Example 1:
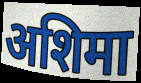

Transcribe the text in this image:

अशिमा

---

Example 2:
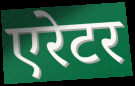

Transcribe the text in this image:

एरेटर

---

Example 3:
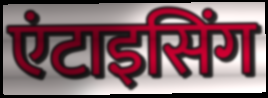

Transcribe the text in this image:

एंटाइसिंग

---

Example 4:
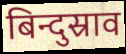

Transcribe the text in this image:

बिन्दुस्राव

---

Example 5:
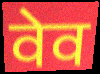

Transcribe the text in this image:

वेव